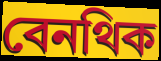
বেনথিক